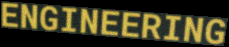
ENGINEERING